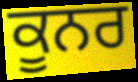
ਕੂਨਰ